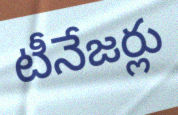
టీనేజర్లు